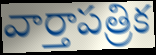
వార్తాపత్రిక